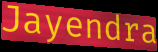
Jayendra